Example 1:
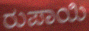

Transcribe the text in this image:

ರುಪಾಯಿ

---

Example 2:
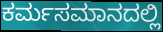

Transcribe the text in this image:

ಕರ್ಮಸಮಾನದಲ್ಲಿ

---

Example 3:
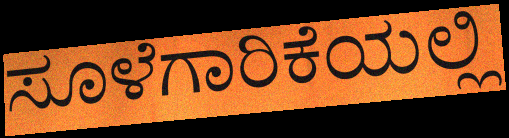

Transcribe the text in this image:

ಸೂಳೆಗಾರಿಕೆಯಲ್ಲಿ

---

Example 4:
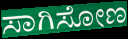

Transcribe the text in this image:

ಸಾಗಿಸೋಣ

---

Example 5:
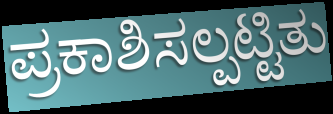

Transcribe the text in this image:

ಪ್ರಕಾಶಿಸಲ್ಪಟ್ಟಿತು